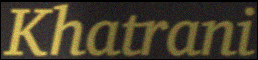
Khatrani